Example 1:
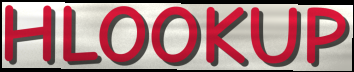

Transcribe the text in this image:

HLOOKUP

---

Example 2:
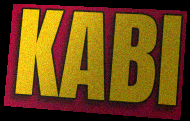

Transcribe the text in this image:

KABI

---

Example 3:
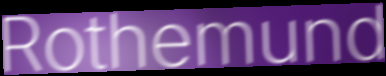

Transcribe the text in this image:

Rothemund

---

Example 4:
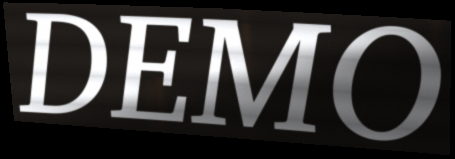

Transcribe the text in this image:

DEMO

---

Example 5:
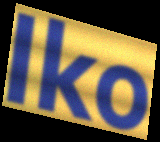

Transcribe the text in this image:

Iko